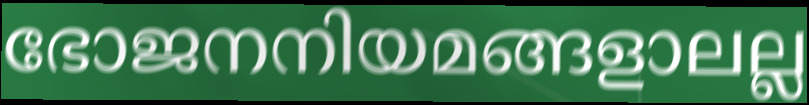
ഭോജനനിയമങ്ങളാലല്ല